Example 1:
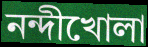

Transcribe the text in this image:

নন্দীখোলা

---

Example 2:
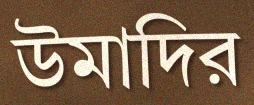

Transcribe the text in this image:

উমাদির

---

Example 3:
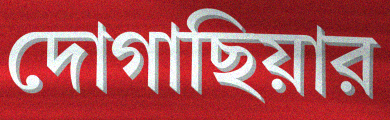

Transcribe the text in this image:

দোগাছিয়ার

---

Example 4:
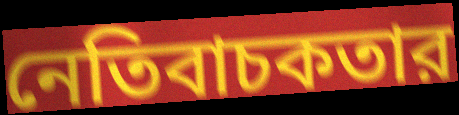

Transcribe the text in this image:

নেতিবাচকতার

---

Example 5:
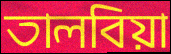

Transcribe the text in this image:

তালবিয়া